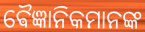
ଵୈଜ୍ଞାନିକମାନଙ୍କ